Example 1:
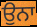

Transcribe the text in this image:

ਉਨਾ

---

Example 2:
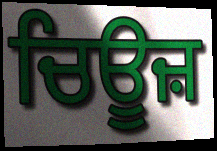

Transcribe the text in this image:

ਚਿਊਜ਼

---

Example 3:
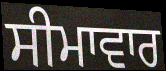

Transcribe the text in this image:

ਸੀਮਾਵਾਰ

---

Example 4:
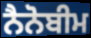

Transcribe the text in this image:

ਨੈਨੋਬੀਮ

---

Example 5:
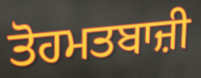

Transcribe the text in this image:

ਤੋਹਮਤਬਾਜ਼ੀ